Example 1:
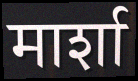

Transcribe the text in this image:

मार्शा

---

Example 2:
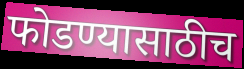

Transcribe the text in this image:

फोडण्यासाठीच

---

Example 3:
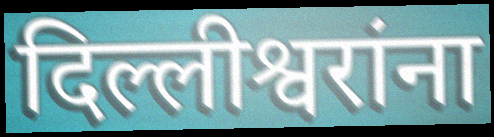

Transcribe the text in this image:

दिल्लीश्वरांना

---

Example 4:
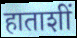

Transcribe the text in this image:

हाताशीं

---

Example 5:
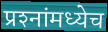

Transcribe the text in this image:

प्रश्नांमध्येच